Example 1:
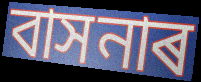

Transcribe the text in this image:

বাসনাৰ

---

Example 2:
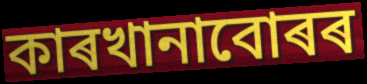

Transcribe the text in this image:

কাৰখানাবোৰৰ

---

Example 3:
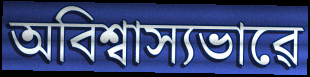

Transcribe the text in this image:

অবিশ্বাস্যভাৱে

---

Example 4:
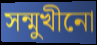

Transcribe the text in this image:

সন্মুখীনো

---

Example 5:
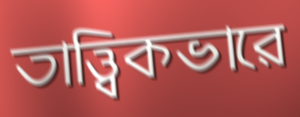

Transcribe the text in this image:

তাত্ত্বিকভাৱে